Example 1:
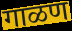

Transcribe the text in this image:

गाळण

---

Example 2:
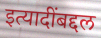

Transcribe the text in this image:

इत्यादींबद्दल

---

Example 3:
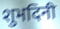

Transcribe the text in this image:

शुभदिनी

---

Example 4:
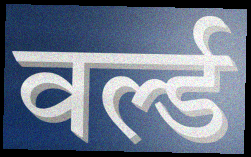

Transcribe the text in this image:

वर्ल्ड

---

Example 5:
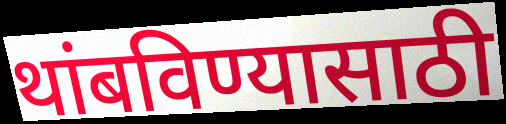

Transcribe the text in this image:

थांबविण्यासाठी